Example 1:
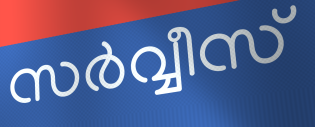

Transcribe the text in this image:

സർവ്വീസ്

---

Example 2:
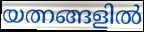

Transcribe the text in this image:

യത്നങ്ങളിൽ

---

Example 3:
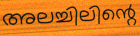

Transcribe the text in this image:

അലച്ചിലിന്റെ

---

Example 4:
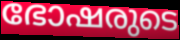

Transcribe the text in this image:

ഭോഷരുടെ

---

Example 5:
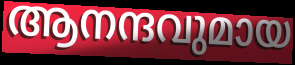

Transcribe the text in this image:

ആനന്ദവുമായ